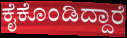
ಕೈಕೊಂಡಿದ್ದಾರೆ